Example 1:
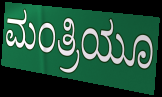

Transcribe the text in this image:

ಮಂತ್ರಿಯೂ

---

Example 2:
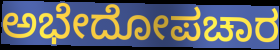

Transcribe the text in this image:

ಅಭೇದೋಪಚಾರ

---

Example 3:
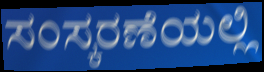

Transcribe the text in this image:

ಸಂಸ್ಕರಣೆಯಲ್ಲಿ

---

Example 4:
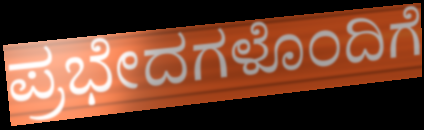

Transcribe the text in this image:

ಪ್ರಭೇದಗಳೊಂದಿಗೆ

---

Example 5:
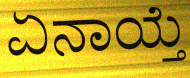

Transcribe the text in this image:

ಏನಾಯ್ತೆ